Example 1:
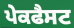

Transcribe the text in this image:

ਪੇਕਫੈਸਟ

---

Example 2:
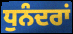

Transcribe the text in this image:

ਧੁਨੰਦਰਾਂ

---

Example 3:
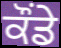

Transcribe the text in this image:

ਕੌਂਡੇ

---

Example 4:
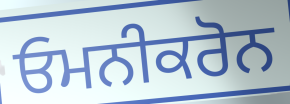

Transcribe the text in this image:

ਓਮਨੀਕਰੋਨ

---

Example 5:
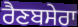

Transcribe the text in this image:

ਰੈਣਬਸੇਰਾ